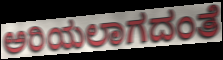
ಅರಿಯಲಾಗದಂತೆ